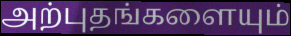
அற்புதங்களையும்